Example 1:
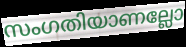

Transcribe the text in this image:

സംഗതിയാണല്ലോ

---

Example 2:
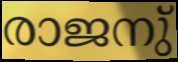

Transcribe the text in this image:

രാജനു്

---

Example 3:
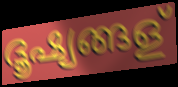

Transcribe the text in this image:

ദൂഷ്യങ്ങള്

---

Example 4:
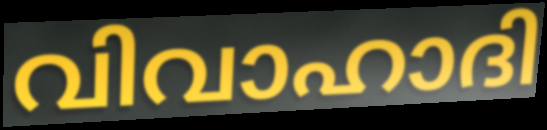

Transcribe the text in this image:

വിവാഹാദി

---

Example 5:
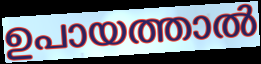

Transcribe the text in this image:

ഉപായത്താൽ